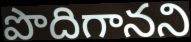
పొదిగానని